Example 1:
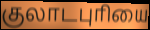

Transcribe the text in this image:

குலாடபுரியை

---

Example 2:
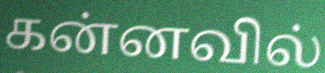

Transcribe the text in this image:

கன்னவில்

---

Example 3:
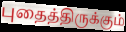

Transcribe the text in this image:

புதைத்திருக்கும்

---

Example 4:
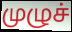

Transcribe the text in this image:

முழுச்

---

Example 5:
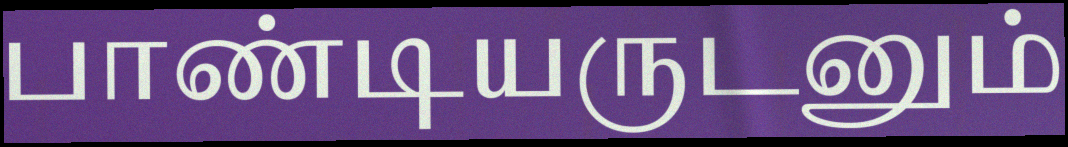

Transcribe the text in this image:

பாண்டியருடனும்